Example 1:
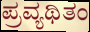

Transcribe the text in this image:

ಪ್ರವ್ಯಥಿತಂ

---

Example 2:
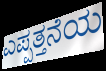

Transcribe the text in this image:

ಎಪ್ಪತ್ತನೆಯ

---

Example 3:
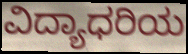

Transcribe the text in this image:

ವಿದ್ಯಾಧರಿಯ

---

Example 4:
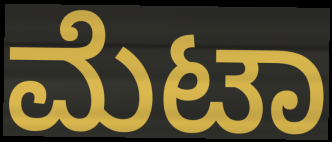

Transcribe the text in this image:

ಮೆಟಾ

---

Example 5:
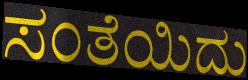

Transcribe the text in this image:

ಸಂತೆಯಿದು